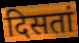
दिसतां